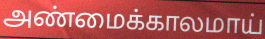
அண்மைக்காலமாய்